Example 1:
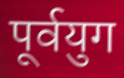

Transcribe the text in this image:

पूर्वयुग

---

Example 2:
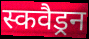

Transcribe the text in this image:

स्कवैड्रन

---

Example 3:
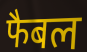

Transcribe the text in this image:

फैबल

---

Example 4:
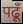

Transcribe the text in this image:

पढूँ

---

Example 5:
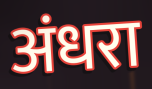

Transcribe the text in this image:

अंधरा